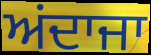
ਅਂਦਾਜਾ